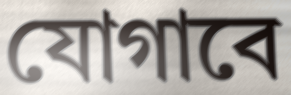
যোগাবে